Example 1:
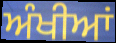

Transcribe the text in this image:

ਅੰਖੀਆਂ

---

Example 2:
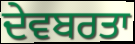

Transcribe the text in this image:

ਦੇਵਬਰਤਾ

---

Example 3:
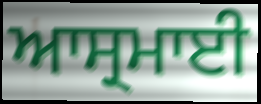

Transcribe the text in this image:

ਆਸ੍ਰਮਾਈ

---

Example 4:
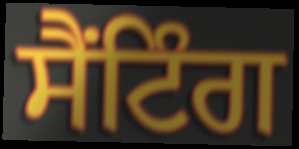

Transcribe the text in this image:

ਸੈਂਟਿੰਗ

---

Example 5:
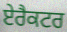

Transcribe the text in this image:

ਏਰੈਕਟਰ